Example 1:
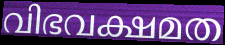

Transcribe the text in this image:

വിഭവക്ഷമത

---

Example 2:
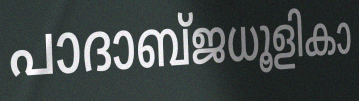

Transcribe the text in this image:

പാദാബ്ജധൂളികാ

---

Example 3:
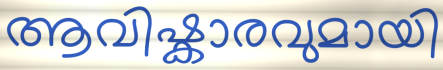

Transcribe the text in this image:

ആവിഷ്കാരവുമായി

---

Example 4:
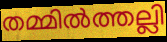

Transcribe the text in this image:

തമ്മിൽത്തല്ലി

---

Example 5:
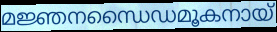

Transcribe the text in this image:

മജ്ഞനന്ധൈഡമൂകനായ്